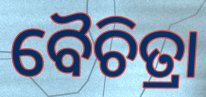
ବୈଚିତ୍ରା